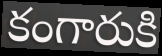
కంగారుకి